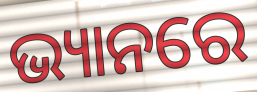
ଭ୍ୟାନରେ